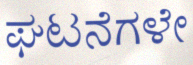
ಘಟನೆಗಳೇ